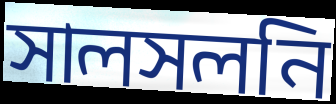
সালসলনি